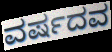
ವರ್ಷದವ